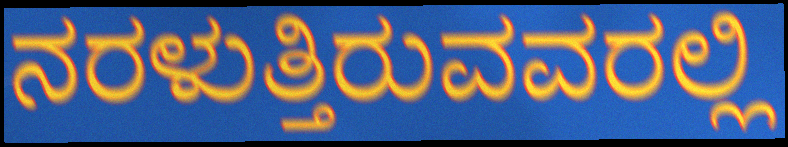
ನರಳುತ್ತಿರುವವರಲ್ಲಿ